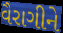
વૈરાગીને